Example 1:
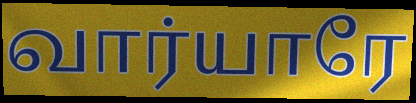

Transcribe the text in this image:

வார்யாரே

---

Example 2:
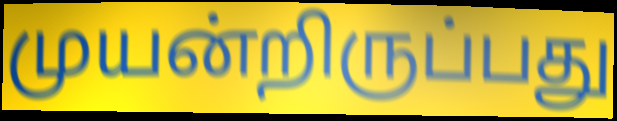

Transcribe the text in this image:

முயன்றிருப்பது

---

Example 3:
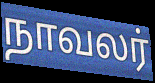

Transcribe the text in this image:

நாவலர்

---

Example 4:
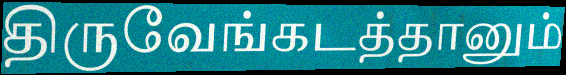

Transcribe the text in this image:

திருவேங்கடத்தானும்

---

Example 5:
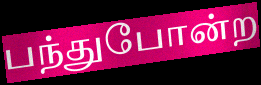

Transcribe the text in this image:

பந்துபோன்ற